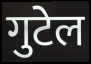
गुटेल